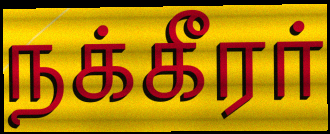
நக்கீரர்